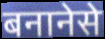
बनानेसे